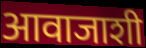
आवाजाशी